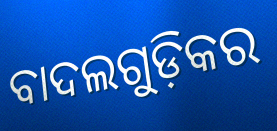
ବାଦଲଗୁଡ଼ିକର